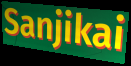
Sanjikai